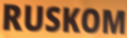
RUSKOM